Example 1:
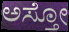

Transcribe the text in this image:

ಅಸ್ತೋ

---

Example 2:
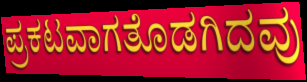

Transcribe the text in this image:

ಪ್ರಕಟವಾಗತೊಡಗಿದವು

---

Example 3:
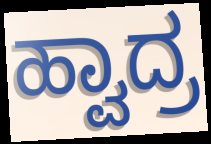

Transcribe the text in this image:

ಹ್ವಾದ್ರ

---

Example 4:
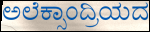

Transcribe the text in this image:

ಅಲೆಕ್ಸಾಂದ್ರಿಯದ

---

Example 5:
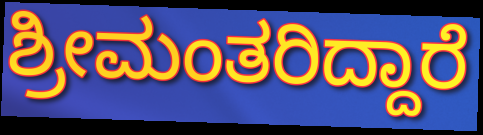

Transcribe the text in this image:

ಶ್ರೀಮಂತರಿದ್ದಾರೆ